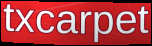
txcarpet